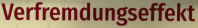
Verfremdungseffekt